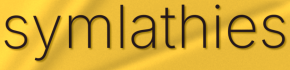
symlathies